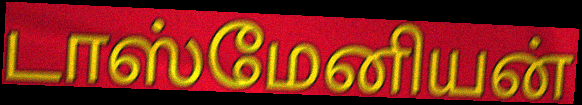
டாஸ்மேனியன்